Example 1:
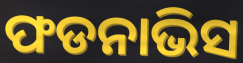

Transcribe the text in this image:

ଫଡନାଭିସ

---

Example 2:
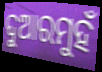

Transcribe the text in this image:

ଦୁଆରମୁହଁ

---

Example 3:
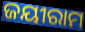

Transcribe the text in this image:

ଜୟୀରାମ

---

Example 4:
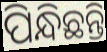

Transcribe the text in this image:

ପିନ୍ଧିଛନ୍ତି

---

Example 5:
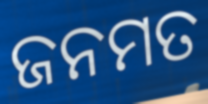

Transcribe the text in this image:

ଜନମତ